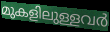
മുകളിലുള്ളവർ